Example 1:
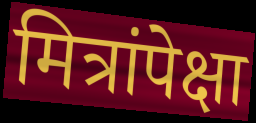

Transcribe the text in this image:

मित्रांपेक्षा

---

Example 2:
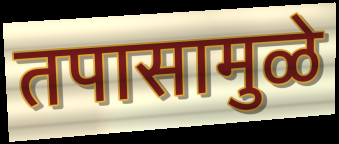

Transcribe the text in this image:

तपासामुळे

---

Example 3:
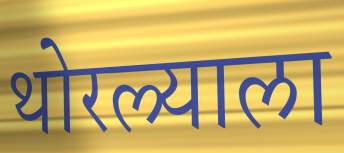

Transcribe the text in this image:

थोरल्याला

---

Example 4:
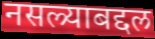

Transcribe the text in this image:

नसल्याबद्दल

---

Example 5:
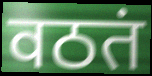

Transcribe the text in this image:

वठतं